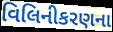
વિલિનીકરણના